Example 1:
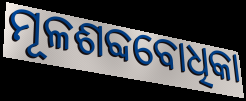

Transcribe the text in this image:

ମୂଳଶବ୍ଦବୋଧିକା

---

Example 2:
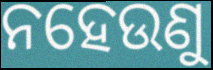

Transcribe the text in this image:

ନହେଉଣୁ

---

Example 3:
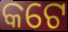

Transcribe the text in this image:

କଟେ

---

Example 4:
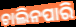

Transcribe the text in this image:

ଚାଲିନପାରି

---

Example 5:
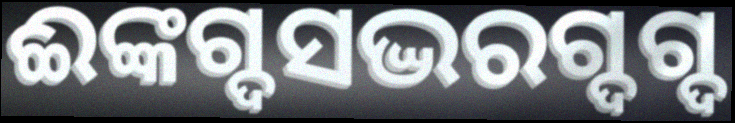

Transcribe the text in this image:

ଈଙ୍କଗ୍ଦସଦ୍ଭରଗ୍ଦଗ୍ଦ